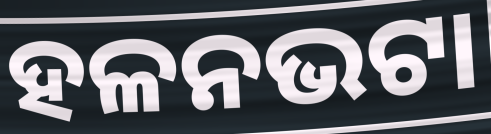
ହଳନଭଟା